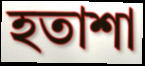
হতাশা